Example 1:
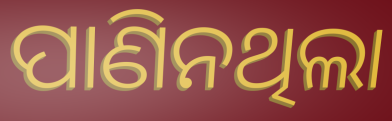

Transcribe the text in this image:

ପାଣିନଥିଲା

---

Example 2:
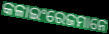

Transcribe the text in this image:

କଳାଇଂରେଜମାନେ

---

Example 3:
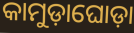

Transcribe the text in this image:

କାମୁଡ଼ାଘୋଡ଼ା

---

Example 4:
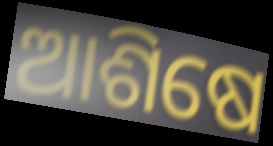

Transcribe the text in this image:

ଆଶିଷେ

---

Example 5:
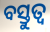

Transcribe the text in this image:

ବସ୍ତୁତ୍ୱ